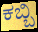
ಕಬ್ಬಿ